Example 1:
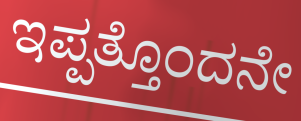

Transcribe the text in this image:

ಇಪ್ಪತ್ತೊಂದನೇ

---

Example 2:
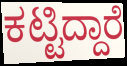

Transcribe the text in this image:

ಕಟ್ಟಿದ್ದಾರೆ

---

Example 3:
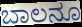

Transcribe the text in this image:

ಬಾಲನೂ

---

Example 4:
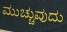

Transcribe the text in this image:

ಮುಚ್ಚುವುದು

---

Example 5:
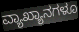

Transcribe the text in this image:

ವ್ಯಾಖ್ಯಾನಗಳೂ